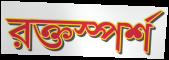
রক্তস্পর্শ